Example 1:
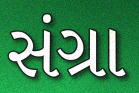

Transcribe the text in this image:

સંગ્રા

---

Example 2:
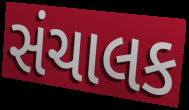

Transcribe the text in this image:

સંચાલક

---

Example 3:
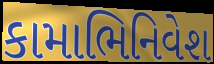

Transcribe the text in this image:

કામાભિનિવેશ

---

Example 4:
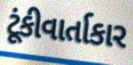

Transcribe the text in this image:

ટૂંકીવાર્તાકાર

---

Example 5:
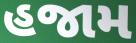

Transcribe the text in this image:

હજામ